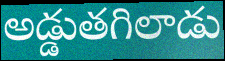
అడ్డుతగిలాడు